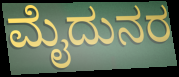
ಮೈದುನರ